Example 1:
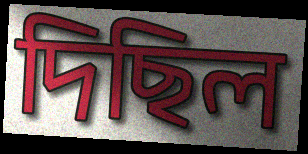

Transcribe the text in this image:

দিছিল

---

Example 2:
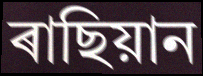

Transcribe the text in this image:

ৰাছিয়ান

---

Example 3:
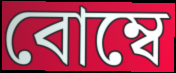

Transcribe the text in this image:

বোম্বে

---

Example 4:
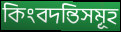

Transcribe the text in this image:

কিংবদন্তিসমূহ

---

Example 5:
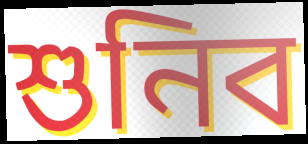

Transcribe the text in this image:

শুনিব